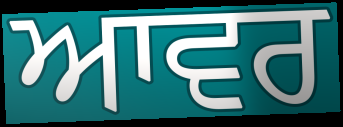
ਆਵਰ